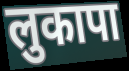
लुकापा